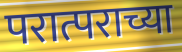
परात्पराच्या